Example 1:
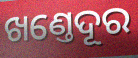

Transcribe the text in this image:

ଖଣ୍ତେଦୂର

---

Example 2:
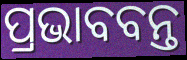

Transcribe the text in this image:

ପ୍ରଭାବବନ୍ତ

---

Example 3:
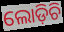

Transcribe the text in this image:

ଲୋଡ଼ିଚି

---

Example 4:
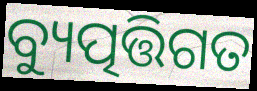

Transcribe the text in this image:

ବ୍ୟୁତ୍ପତ୍ତିଗତ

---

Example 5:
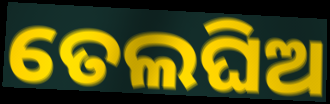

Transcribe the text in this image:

ତେଲଘିଅ